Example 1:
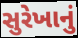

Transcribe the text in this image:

સુરેખાનું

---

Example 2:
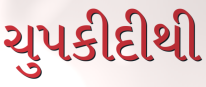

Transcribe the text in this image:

ચુપકીદીથી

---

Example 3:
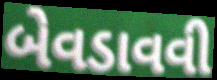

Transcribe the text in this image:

બેવડાવવી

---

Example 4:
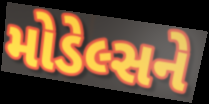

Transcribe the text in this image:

મોડેલ્સને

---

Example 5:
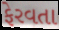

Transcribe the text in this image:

ફેરવતા